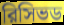
রিসিভড